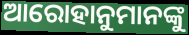
ଆରୋହାନୁମାନଙ୍କୁ